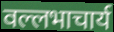
वल्‍लभाचार्य